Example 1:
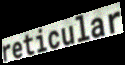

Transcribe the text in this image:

reticular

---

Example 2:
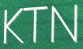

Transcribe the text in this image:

KTN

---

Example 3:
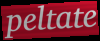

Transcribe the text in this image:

peltate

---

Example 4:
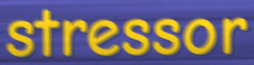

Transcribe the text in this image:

stressor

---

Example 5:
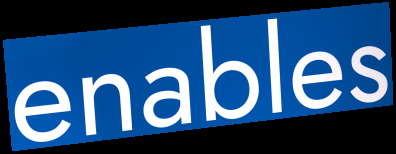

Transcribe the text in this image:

enables